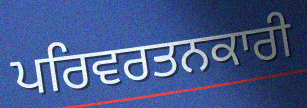
ਪਰਿਵਰਤਨਕਾਰੀ